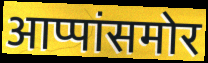
आप्पांसमोर